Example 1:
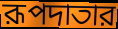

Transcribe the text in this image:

রূপদাতার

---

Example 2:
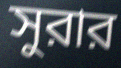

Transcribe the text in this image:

সুরার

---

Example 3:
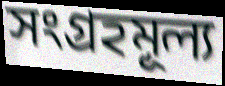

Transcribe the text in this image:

সংগ্রহমূল্য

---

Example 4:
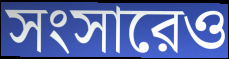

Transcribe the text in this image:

সংসারেও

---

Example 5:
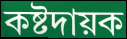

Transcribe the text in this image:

কষ্টদায়ক